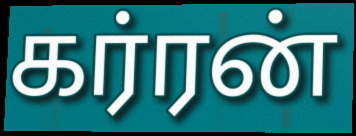
கர்ரன்